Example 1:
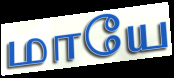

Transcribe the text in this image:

மாயே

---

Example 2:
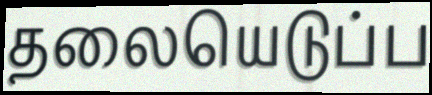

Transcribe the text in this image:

தலையெடுப்ப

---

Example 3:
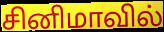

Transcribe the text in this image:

சினிமாவில்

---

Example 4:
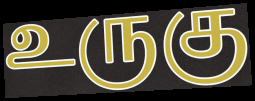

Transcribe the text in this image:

உருகு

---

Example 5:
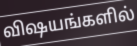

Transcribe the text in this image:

விஷயங்களில்